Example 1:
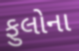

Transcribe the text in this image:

ફુલોના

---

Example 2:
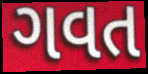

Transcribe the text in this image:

ગવત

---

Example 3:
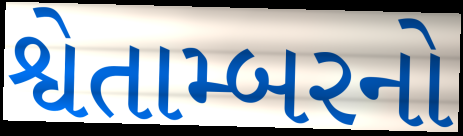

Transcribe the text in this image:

શ્વેતામ્બરનો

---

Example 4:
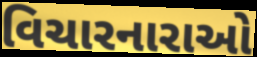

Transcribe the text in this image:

વિચારનારાઓ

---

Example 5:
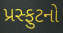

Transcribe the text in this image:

પ્રસ્ફુટનો